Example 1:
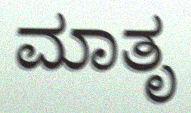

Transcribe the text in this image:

ಮಾತೃ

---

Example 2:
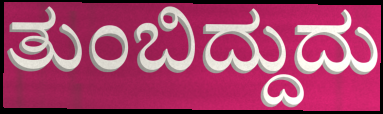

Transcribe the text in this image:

ತುಂಬಿದ್ದುದು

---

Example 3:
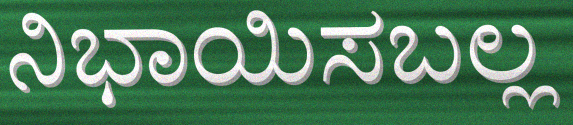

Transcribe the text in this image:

ನಿಭಾಯಿಸಬಲ್ಲ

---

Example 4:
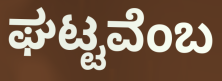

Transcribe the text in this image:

ಘಟ್ಟವೆಂಬ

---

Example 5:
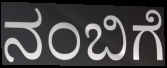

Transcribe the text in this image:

ನಂಬಿಗೆ